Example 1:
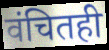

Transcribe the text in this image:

वंचितही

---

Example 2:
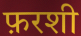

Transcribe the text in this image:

फ़रशी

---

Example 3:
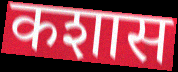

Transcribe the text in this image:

कशास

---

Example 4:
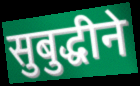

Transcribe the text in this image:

सुबुद्धीने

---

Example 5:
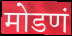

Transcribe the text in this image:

मोडणं